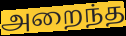
அறைந்த